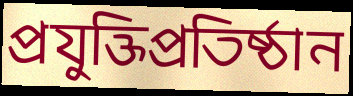
প্রযুক্তিপ্রতিষ্ঠান